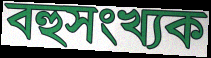
বহুসংখ্যক